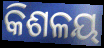
କିଶଳୟ